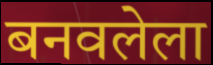
बनवलेला